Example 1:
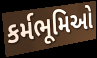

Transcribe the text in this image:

કર્મભૂમિઓ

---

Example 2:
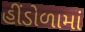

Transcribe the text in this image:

હીંડોળામાં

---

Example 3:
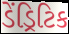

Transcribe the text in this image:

ડેંડ્રિટિક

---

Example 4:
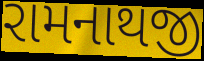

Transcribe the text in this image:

રામનાથજી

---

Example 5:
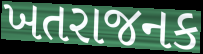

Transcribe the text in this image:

ખતરાજનક